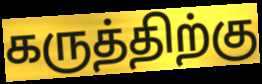
கருத்திற்கு